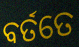
ବର୍ତତେ